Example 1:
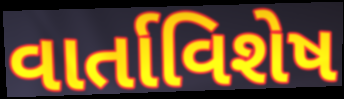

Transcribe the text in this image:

વાર્તાવિશેષ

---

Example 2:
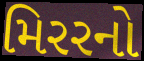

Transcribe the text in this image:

મિરરનો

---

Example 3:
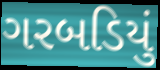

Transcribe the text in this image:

ગરબડિયું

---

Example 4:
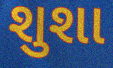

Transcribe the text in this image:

શુશા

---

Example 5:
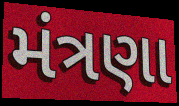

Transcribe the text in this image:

મંત્રણા